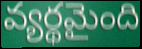
వ్యర్థమైంది